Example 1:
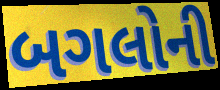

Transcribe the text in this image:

બગલોની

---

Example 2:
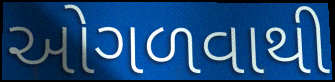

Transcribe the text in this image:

ઓગળવાથી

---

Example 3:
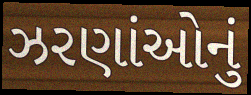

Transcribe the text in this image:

ઝરણાંઓનું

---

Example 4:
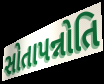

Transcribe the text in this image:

સોતાપન્નોતિ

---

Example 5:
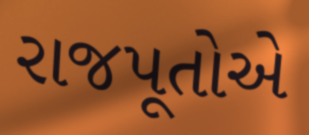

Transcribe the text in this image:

રાજપૂતોએ